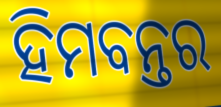
ହିମବନ୍ତର